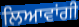
ਲਿਆਵਾਂਗੀ